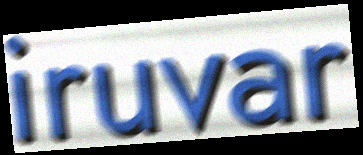
iruvar